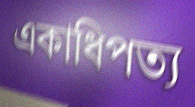
একাধিপত্য